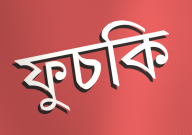
ফুচকি